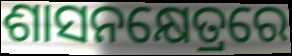
ଶାସନକ୍ଷେତ୍ରରେ